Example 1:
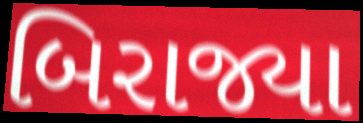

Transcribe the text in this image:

બિરાજ્યા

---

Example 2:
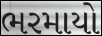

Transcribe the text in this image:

ભરમાયો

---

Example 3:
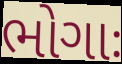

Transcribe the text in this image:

ભોગાઃ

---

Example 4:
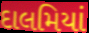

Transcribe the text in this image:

દાલમિયાં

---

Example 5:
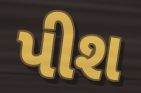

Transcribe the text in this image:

પીશ